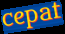
cepat